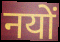
नयों